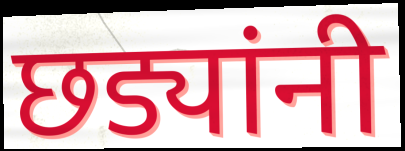
छड्यांनी